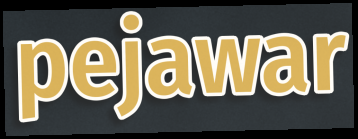
pejawar